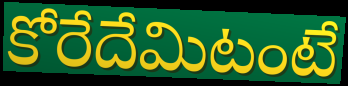
కోరేదేమిటంటే